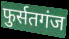
फुर्सतगंज